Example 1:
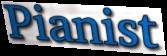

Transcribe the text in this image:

Pianist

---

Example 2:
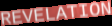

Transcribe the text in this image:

REVELATION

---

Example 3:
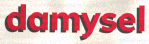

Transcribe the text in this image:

damysel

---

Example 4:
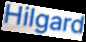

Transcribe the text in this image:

Hilgard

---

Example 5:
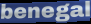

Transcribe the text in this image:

benegal